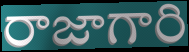
రాజాగారి